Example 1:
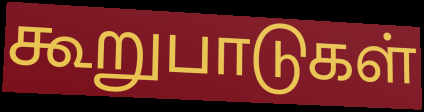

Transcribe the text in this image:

கூறுபாடுகள்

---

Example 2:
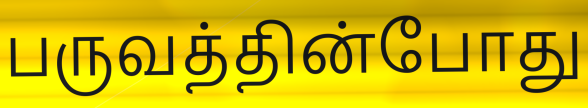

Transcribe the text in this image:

பருவத்தின்போது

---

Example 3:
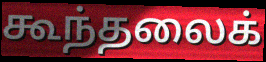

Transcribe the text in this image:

கூந்தலைக்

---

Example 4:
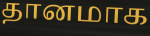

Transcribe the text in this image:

தானமாக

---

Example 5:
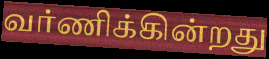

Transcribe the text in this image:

வர்ணிக்கின்றது